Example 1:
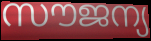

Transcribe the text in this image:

സൗജന്യ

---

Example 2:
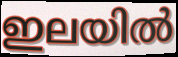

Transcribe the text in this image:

ഇലയിൽ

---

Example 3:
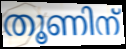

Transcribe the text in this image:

തൂണിന്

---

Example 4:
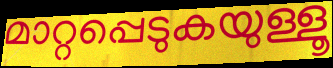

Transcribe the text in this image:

മാറ്റപ്പെടുകയുള്ളൂ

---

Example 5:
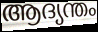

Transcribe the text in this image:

ആദ്യന്തം